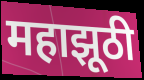
महाझूठी